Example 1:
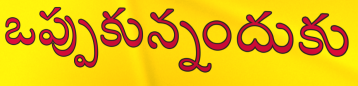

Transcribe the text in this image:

ఒప్పుకున్నందుకు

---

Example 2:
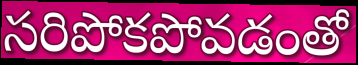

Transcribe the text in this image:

సరిపోకపోవడంతో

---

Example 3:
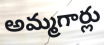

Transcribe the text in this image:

అమ్మగార్లు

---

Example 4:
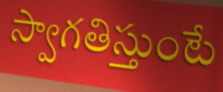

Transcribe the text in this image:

స్వాగతిస్తుంటే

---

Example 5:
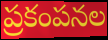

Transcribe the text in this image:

ప్రకంపనల